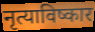
नृत्याविष्कार